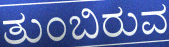
ತುಂಬಿರುವ